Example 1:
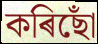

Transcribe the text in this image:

কৰিছোঁ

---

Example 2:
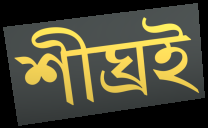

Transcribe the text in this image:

শীঘ্ৰই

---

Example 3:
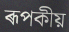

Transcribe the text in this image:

ৰূপকীয়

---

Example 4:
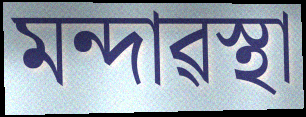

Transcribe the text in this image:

মন্দাৱস্থা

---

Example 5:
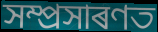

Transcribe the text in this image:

সম্প্ৰসাৰণত